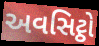
અવસિટ્ઠો